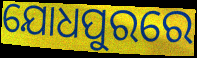
ଯୋଧପୁରରେ